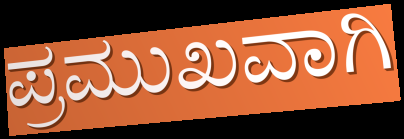
ಪ್ರಮುಖವಾಗಿ